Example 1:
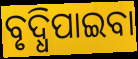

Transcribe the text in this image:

ବୃଦ୍ଧିପାଇବା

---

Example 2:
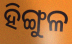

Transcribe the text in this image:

ହିଙ୍ଗୁଳ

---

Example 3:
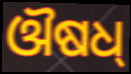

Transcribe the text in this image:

ଔଷଧ୍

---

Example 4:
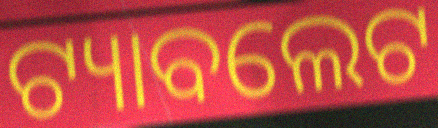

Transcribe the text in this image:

ଟ୍ୟାବଲେଟ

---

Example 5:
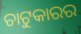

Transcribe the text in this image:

ଚାଟୁକାରର